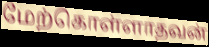
மேற்கொள்ளாதவன்